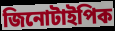
জিনোটাইপিক